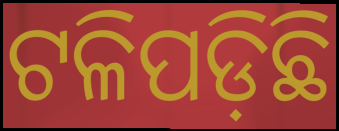
ଟଳିପଡ଼ିଛି